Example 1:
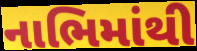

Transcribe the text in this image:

નાભિમાંથી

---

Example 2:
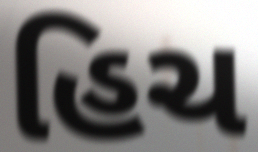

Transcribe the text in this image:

હિચ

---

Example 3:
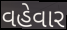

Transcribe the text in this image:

વહેવાર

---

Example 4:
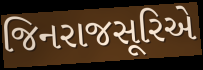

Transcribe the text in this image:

જિનરાજસૂરિએ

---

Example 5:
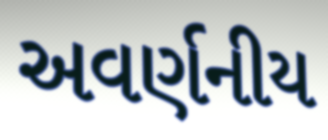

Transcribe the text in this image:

અવર્ણનીય